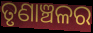
ତୃଣାଞ୍ଚଳର